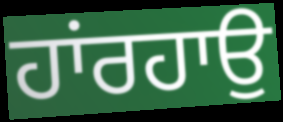
ਹਾਂਰਹਾਉ